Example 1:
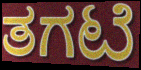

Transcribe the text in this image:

ತಗಟೆ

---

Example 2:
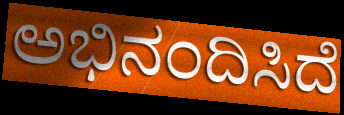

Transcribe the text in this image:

ಅಭಿನಂದಿಸಿದೆ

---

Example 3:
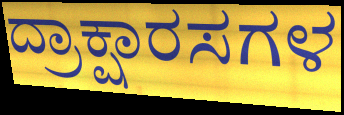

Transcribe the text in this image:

ದ್ರಾಕ್ಷಾರಸಗಳ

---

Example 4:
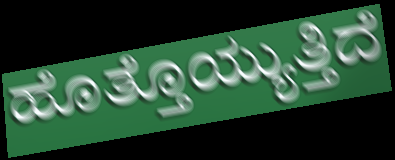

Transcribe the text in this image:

ಹೊತ್ತೊಯ್ಯುತ್ತಿದೆ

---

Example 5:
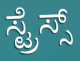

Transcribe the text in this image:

ಸ್ಟ್ರೆಸ್ಸ್